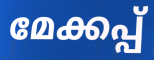
മേക്കപ്പ്